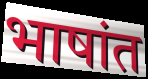
भाषांत